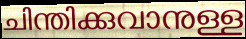
ചിന്തിക്കുവാനുള്ള